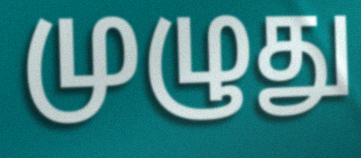
முழுது